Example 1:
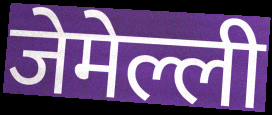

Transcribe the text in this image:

जेमेल्ली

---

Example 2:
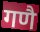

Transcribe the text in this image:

गणै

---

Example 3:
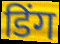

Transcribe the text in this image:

डिंग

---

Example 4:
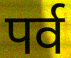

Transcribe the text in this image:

पर्व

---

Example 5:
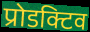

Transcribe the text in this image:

प्रोडक्टिव